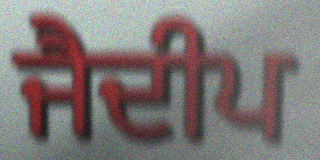
ਜੈਦੀਪ